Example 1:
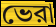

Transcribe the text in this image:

ভেরা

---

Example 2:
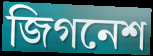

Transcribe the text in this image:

জিগনেশ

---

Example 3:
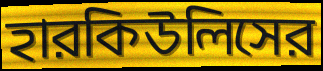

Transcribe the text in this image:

হারকিউলিসের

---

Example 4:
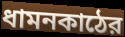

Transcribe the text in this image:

ধামনকাঠের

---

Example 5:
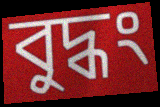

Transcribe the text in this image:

বুদ্ধং